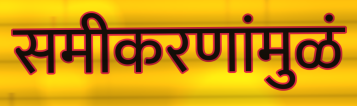
समीकरणांमुळं